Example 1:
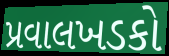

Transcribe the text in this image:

પ્રવાલખડકો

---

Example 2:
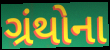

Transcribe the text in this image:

ગ્રંથોના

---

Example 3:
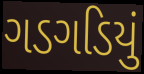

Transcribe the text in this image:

ગડગડિયું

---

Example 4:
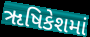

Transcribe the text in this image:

ૠષિકેશમાં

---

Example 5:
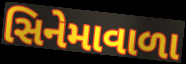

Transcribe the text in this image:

સિનેમાવાળા